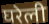
घरेली